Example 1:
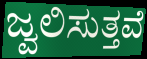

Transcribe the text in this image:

ಜ್ವಲಿಸುತ್ತವೆ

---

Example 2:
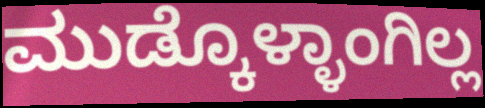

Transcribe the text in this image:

ಮುಡ್ಕೊಳ್ಳಾಂಗಿಲ್ಲ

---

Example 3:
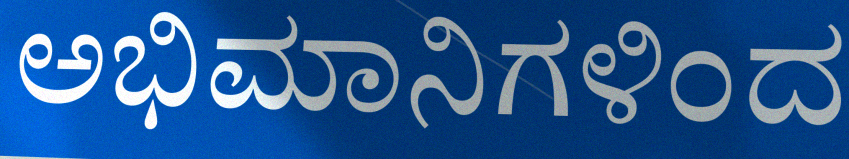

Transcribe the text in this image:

ಅಭಿಮಾನಿಗಳಿಂದ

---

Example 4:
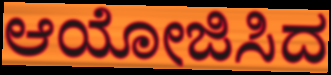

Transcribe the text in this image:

ಆಯೋಜಿಸಿದ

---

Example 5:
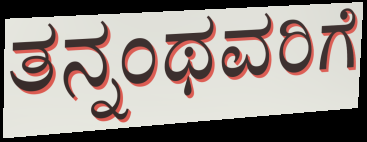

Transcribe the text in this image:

ತನ್ನಂಥವರಿಗೆ